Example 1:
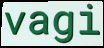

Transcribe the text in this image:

vagi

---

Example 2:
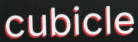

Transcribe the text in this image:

cubicle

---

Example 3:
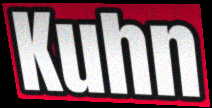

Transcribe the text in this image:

Kuhn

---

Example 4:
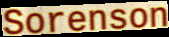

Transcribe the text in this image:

Sorenson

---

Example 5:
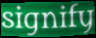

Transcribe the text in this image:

signify